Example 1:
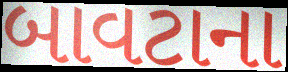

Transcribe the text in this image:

બાવટાના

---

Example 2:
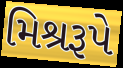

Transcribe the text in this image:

મિશ્રરૂપે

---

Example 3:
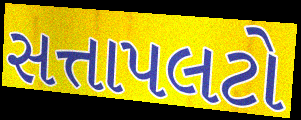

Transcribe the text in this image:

સત્તાપલટો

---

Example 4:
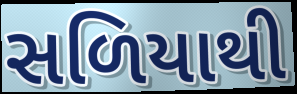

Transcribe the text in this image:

સળિયાથી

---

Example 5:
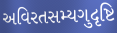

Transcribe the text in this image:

અવિરતસમ્યગુદૃષ્ટિ